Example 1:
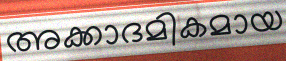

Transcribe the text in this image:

അക്കാദമികമായ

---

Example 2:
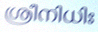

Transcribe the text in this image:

ശ്രീനിധിഃ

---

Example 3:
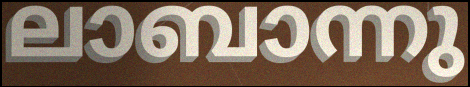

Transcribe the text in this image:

ലാബാന്നു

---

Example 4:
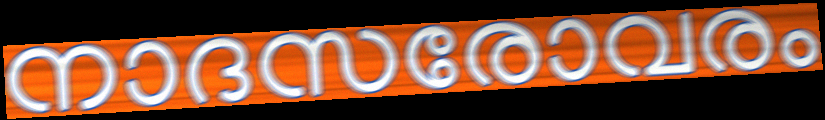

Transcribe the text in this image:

നാദസരോവരം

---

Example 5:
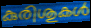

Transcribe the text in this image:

കുരിശുകൾ